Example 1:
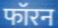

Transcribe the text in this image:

फॉरन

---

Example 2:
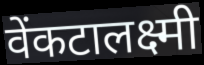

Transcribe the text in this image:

वेंकटालक्ष्मी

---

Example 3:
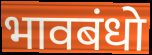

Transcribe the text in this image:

भावबंधो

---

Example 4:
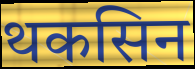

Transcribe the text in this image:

थकसिन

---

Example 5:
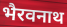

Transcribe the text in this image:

भैरवनाथ